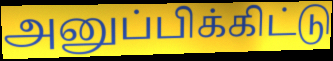
அனுப்பிக்கிட்டு